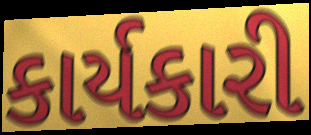
કાર્યકારી